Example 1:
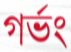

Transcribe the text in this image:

গর্ভং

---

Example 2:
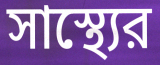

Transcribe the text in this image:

সাস্থ্যের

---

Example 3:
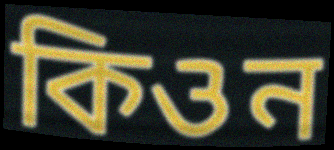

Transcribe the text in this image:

কিওন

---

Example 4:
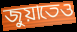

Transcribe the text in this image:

জুয়াতেও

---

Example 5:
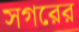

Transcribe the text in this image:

সগরের